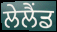
ਲੇਲੈਂਡ